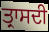
ਤ੍ਰਾਸਦੀ